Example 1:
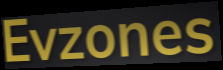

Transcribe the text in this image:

Evzones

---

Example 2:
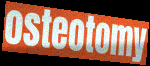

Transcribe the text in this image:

osteotomy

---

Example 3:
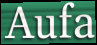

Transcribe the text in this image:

Aufa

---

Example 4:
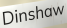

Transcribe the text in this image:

Dinshaw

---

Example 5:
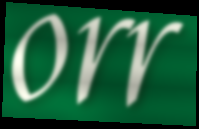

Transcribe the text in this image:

orr